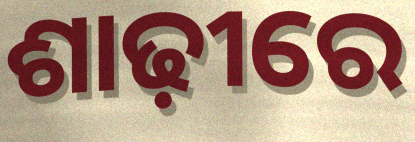
ଶାଢ଼ୀରେ